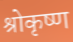
श्रोकृष्ण